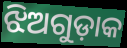
ଝିଅଗୁଡ଼ାକ